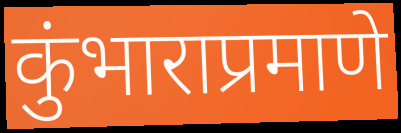
कुंभाराप्रमाणे